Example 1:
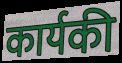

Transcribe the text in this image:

कार्यकी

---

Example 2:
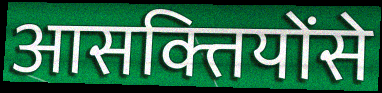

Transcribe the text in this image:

आसक्तियोंसे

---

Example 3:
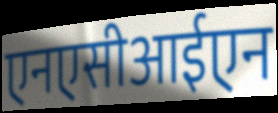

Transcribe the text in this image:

एनएसीआईएन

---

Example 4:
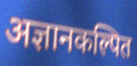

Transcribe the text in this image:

अज्ञानकल्पित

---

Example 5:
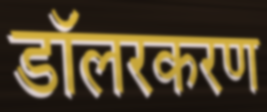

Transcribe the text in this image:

डॉलरकरण